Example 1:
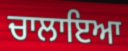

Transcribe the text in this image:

ਚਾਲਾਇਆ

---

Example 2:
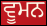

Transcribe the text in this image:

ਵੂਮਨ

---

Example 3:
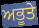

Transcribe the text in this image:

ਅਭੂਤੇ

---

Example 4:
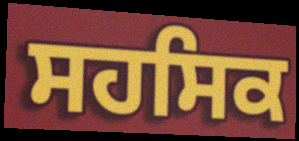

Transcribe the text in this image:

ਸਹਸਿਕ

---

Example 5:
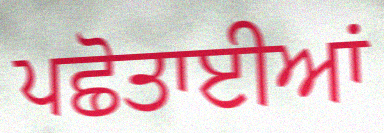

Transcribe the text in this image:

ਪਛੋਤਾਈਆਂ